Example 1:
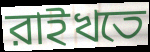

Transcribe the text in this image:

রাইখতে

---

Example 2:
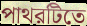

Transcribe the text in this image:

পাথরটিতে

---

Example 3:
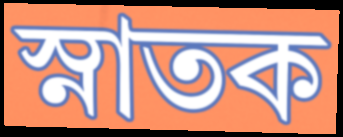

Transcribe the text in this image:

স্নাতক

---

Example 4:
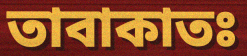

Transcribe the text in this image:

তাবাকাতঃ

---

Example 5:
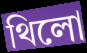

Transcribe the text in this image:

থিলো